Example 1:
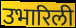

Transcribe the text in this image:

उभारिली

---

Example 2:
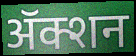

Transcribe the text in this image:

ॲक्शन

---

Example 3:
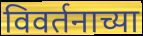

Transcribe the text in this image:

विवर्तनाच्या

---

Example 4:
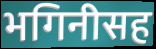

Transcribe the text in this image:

भगिनीसह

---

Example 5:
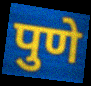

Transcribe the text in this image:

पुणे